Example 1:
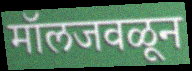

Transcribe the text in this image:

मॉलजवळून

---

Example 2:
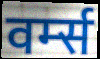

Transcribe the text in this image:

वर्म्स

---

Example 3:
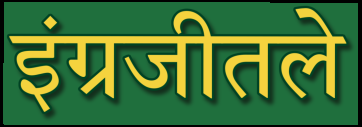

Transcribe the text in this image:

इंग्रजीतले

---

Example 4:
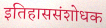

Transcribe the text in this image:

इतिहाससंशोधक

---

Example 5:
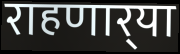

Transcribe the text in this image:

राहणार्‍या